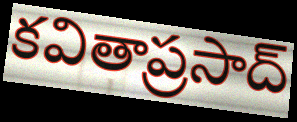
కవితాప్రసాద్